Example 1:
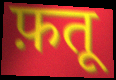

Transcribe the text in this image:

फ़तू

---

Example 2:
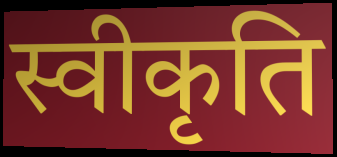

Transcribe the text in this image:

स्‍वीकृति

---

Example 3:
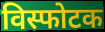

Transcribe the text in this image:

विस्फोटक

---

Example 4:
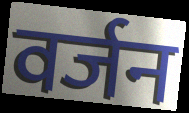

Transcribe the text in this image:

वर्जन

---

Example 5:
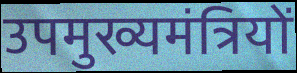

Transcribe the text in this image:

उपमुख्यमंत्रियों